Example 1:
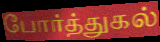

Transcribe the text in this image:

போர்த்துகல்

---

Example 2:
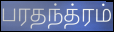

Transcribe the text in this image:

பரதந்த்ரம்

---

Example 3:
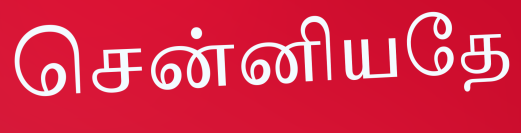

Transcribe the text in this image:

சென்னியதே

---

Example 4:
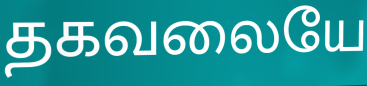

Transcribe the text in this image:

தகவலையே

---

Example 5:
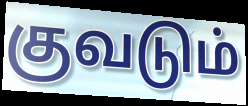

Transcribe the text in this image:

குவடும்